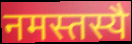
नमस्तस्यै